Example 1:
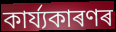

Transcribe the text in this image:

কাৰ্য্যকাৰণৰ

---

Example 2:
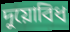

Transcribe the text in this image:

দুয়োবিধ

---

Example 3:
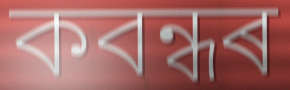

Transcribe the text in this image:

কবন্ধৰ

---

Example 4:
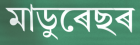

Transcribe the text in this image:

মাডুৰেছৰ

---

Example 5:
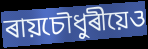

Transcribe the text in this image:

ৰায়চৌধুৰীয়েও